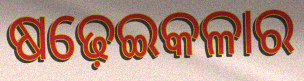
ଷଢ଼େଇକଳାର